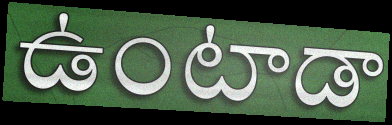
ఉంటాడా